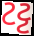
ટટ્ટ